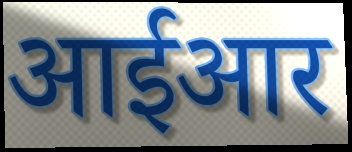
आईआर